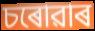
চৰোৱাৰ